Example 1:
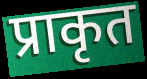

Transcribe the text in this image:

प्राकृत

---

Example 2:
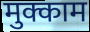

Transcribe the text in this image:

मुक्काम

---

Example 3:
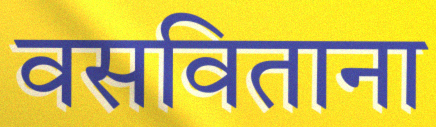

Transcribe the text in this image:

वसविताना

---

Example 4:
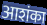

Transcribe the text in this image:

आशंका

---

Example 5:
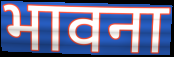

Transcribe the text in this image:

भावना